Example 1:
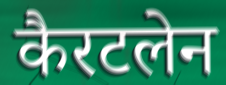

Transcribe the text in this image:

कैरटलेन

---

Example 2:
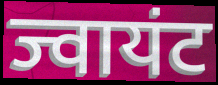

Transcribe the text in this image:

ज्वायंट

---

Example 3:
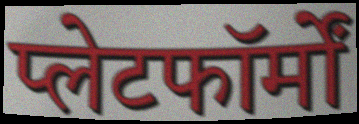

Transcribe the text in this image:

प्लेटफॉर्मों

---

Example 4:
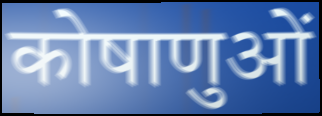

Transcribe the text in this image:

कोषाणुओं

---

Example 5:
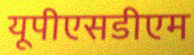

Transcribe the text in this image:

यूपीएसडीएम